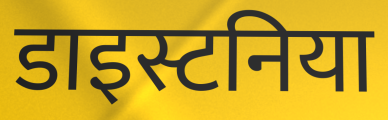
डाइस्टनिया